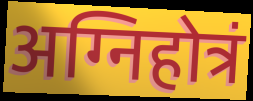
अग्निहोत्रं